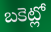
బకెట్లో